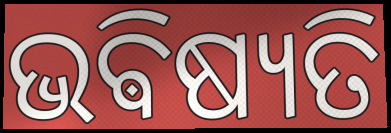
ଭଵିଷ୍ୟତି